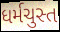
ધર્મચુસ્ત